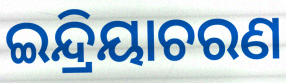
ଇନ୍ଦ୍ରିୟାଚରଣ